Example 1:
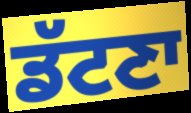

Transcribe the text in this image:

ਡੱਟਣਾ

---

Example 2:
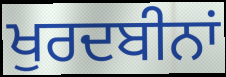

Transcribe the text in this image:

ਖੁਰਦਬੀਨਾਂ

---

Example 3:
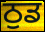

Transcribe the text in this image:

ਠੁਡ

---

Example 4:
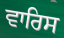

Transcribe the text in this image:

ਵਾਰਿਸ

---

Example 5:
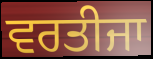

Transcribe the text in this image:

ਵਰਤੀਜਾ